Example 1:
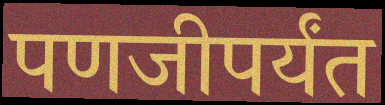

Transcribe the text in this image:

पणजीपर्यंत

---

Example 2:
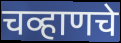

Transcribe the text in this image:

चव्हाणचे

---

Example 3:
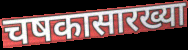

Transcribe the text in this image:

चषकासारख्या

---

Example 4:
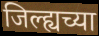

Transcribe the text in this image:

जिल्ह्यच्या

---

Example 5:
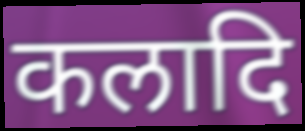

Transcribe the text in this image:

कलादि